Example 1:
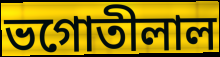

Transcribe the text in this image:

ভগোতীলাল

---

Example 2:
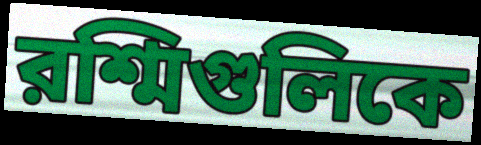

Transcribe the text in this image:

রশ্মিগুলিকে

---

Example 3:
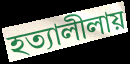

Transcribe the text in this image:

হত্যালীলায়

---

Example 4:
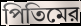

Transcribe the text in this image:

পিতিমের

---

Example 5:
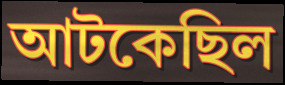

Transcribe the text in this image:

আটকেছিল